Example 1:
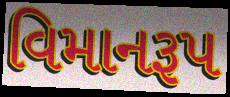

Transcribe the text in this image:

વિમાનરૂપ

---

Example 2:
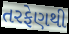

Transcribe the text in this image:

તરફેણથી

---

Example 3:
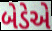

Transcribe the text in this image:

બેડેએ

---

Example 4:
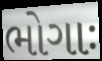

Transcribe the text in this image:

ભોગાઃ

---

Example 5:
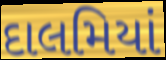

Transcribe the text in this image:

દાલમિયાં